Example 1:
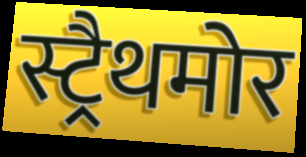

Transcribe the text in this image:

स्ट्रैथमोर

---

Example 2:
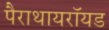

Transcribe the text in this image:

पैराथायरॉयड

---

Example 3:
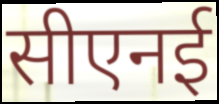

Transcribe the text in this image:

सीएनई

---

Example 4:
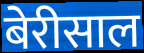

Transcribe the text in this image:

बेरीसाल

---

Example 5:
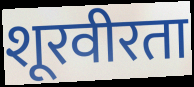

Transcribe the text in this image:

शूरवीरता